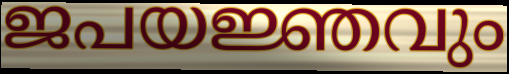
ജപയജ്ഞവും